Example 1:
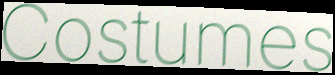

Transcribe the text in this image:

Costumes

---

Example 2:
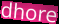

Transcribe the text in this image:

dhore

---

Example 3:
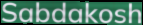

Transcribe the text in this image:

Sabdakosh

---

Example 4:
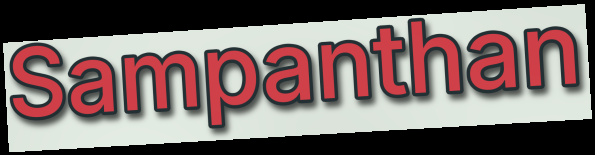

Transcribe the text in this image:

Sampanthan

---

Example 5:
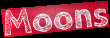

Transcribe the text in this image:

Moons